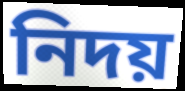
নিদয়